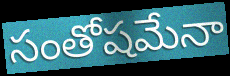
సంతోషమేనా